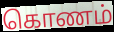
கொணம்